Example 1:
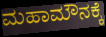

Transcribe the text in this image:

ಮಹಾಮೌನಕ್ಕೆ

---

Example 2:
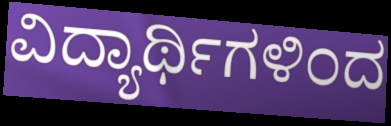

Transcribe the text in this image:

ವಿದ್ಯಾರ್ಥಿಗಳಿಂದ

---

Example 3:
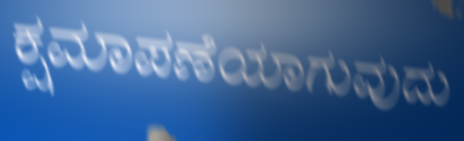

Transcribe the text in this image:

ಕ್ಷಮಾಪಣೆಯಾಗುವುದು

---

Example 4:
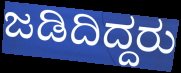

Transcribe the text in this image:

ಜಡಿದಿದ್ದರು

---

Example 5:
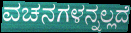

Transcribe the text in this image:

ವಚನಗಳನ್ನಲ್ಲದೆ